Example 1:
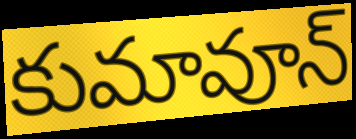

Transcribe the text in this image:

కుమావూన్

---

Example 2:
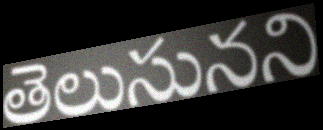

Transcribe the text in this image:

తెలుసునని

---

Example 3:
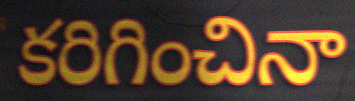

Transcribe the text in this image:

కరిగించినా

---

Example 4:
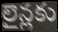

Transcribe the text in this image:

లైన్లకు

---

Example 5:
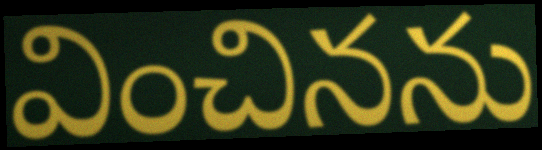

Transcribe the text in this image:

వించినను